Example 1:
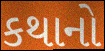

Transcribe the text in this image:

કથાનો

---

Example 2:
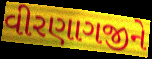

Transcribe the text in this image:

વીરણાગજીને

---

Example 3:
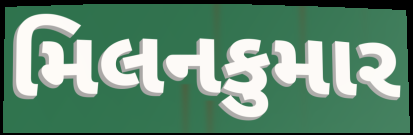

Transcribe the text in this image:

મિલનકુમાર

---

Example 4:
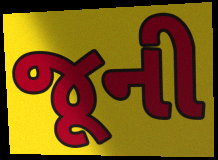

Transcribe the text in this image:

જૂની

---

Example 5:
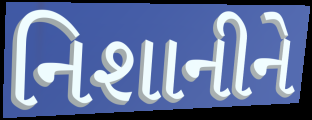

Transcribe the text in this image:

નિશાનીને